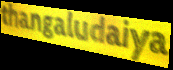
thangaludaiya